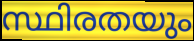
സ്ഥിരതയും